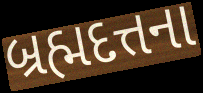
બ્રહ્મદત્તના